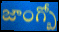
జాంగ్బో